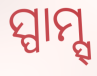
ସ୍ପାମ୍ସ୍